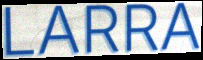
LARRA